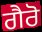
ਗੈਰੋ